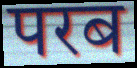
परब